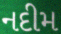
નદીમ